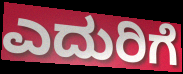
ಎದುರಿಗೆ